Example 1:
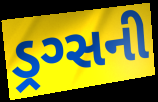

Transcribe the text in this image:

ડ્રગ્સની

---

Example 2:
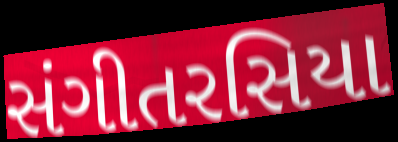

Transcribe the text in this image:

સંગીતરસિયા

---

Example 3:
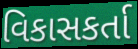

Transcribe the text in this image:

વિકાસકર્તા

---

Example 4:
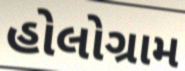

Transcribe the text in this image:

હોલોગ્રામ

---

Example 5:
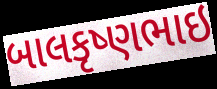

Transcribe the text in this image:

બાલકૃષ્ણભાઇ